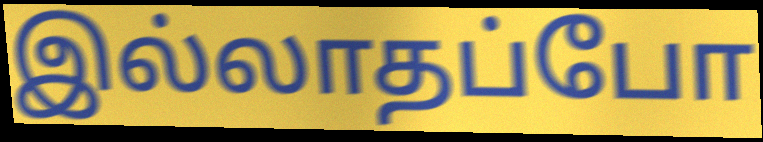
இல்லாதப்போ